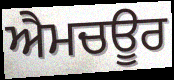
ਐਮਚਊਰ